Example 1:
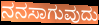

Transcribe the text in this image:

ನನಸಾಗುವುದು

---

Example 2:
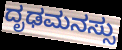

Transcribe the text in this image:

ದೃಢಮನಸ್ಸು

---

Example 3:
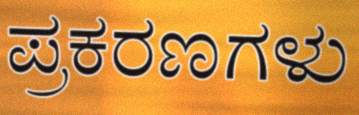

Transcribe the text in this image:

ಪ್ರಕರಣಗಳು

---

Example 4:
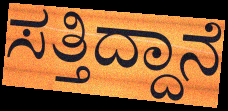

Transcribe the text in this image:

ಸತ್ತಿದ್ದಾನೆ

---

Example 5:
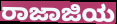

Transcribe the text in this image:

ರಾಜಾಜಿಯ